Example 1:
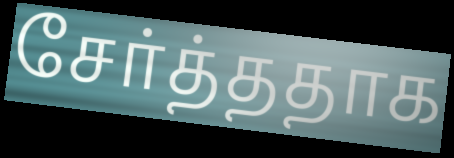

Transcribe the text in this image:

சேர்த்ததாக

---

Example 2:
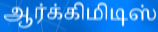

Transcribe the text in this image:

ஆர்க்கிமிடிஸ்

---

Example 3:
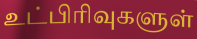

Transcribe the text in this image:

உட்பிரிவுகளுள்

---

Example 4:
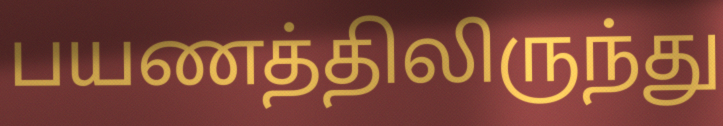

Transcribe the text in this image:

பயணத்திலிருந்து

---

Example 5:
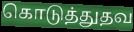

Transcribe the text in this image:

கொடுத்துதவ